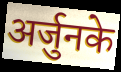
अर्जुनके